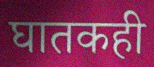
घातकही